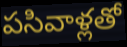
పసివాళ్లతో